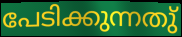
പേടിക്കുന്നതു്